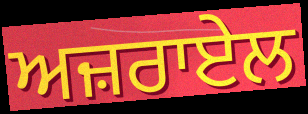
ਅਜ਼ਰਾਏਲ